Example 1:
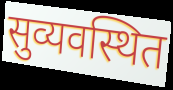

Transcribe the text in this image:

सुव्यवस्थित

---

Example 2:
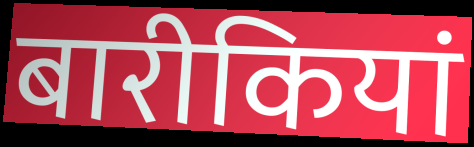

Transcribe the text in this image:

बारीकियां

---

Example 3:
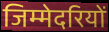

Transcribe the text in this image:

जिम्मेदरियों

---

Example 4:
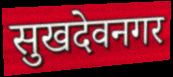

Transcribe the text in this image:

सुखदेवनगर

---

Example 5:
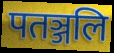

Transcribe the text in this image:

पतञ्जलि